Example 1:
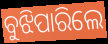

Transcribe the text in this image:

ବୁଝିପାରିଲେ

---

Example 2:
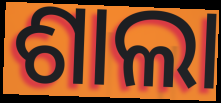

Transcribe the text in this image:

ଶାଲା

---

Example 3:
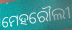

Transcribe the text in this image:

ମେହରୌଲୀ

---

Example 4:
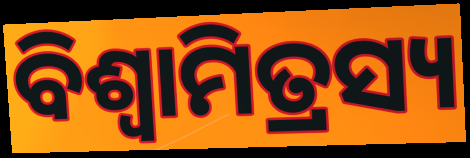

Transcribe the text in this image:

ବିଶ୍ଵାମିତ୍ରସ୍ୟ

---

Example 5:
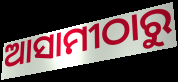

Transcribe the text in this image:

ଆସାମୀଠାରୁ